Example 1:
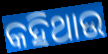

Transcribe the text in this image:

କହିଥାଉ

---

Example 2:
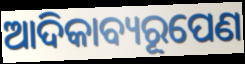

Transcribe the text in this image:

ଆଦିକାବ୍ୟରୂପେଣ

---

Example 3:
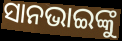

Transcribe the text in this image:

ସାନଭାଇଙ୍କୁ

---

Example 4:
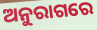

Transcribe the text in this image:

ଅନୁରାଗରେ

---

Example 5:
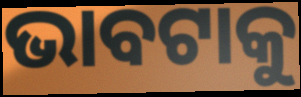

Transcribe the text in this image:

ଭାବଟାକୁ